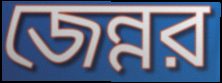
জেন্নর